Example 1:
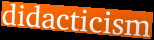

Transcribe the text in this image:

didacticism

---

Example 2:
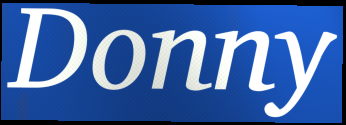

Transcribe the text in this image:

Donny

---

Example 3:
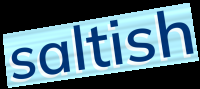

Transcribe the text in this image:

saltish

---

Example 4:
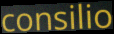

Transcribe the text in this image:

consilio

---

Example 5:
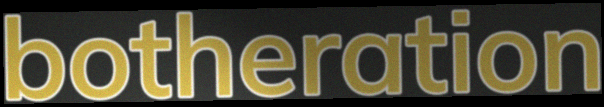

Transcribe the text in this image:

botheration